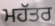
ਮਹੱਤਰ